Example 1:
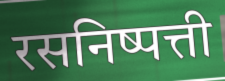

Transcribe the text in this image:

रसनिष्पत्ती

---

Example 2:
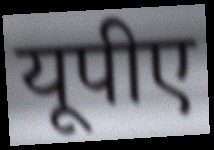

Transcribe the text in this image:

यूपीए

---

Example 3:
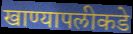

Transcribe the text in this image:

खाण्यापलीकडे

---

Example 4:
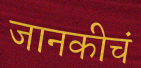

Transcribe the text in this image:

जानकीचं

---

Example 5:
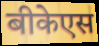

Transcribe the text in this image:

बीकेएस